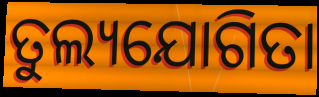
ତୁଲ୍ୟଯୋଗିତା